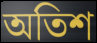
অতিশ